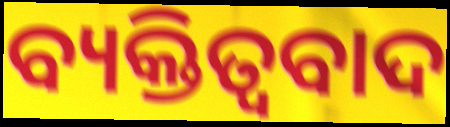
ବ୍ୟକ୍ତିତ୍ବବାଦ